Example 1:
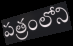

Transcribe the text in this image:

పత్రంలోని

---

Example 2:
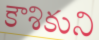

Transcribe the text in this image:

కౌశికుని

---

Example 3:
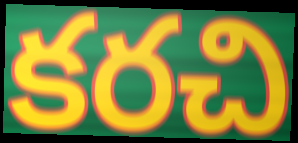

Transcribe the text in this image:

కరచి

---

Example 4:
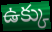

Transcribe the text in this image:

ఉక్కు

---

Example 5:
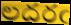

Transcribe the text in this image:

లదరఁ